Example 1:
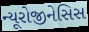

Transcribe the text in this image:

ન્યૂરોજીનેસિસ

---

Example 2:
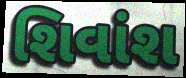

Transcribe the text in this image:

શિવાંશ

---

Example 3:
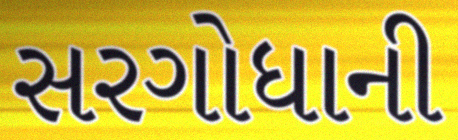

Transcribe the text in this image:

સરગોધાની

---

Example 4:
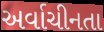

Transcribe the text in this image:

અર્વાચીનતા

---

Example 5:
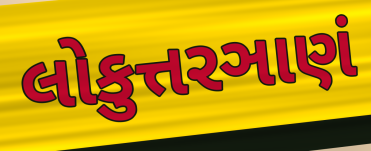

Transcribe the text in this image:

લોકુત્તરઞાણં